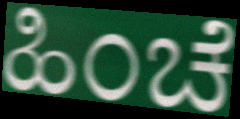
ಹಿಂಚೆ